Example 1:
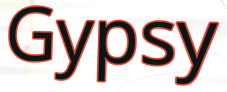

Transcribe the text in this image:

Gypsy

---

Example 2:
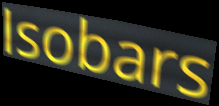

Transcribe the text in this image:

Isobars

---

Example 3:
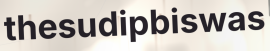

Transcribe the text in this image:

thesudipbiswas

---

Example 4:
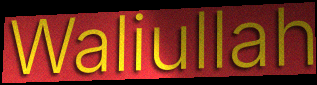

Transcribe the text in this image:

Waliullah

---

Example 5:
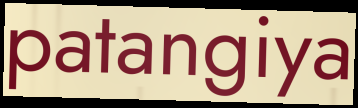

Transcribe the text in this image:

patangiya